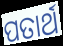
ପତାର୍ଥ